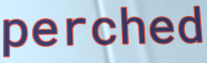
perched